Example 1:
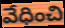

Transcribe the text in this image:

వేధించి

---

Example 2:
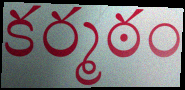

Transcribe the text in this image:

కర్మఠం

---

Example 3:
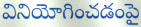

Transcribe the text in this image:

వినియోగించడంపై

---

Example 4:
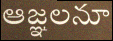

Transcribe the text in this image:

ఆజ్ఞలనూ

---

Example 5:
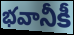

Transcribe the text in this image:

భవానీకీ